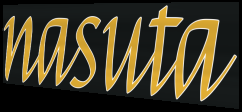
nasuta